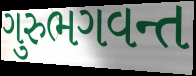
ગુરુભગવન્ત